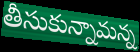
తీసుకున్నామన్న